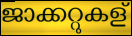
ജാക്കറ്റുകള്